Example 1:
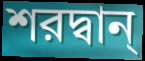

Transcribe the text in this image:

শরদ্বান্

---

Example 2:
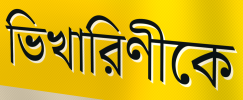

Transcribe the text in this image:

ভিখারিণীকে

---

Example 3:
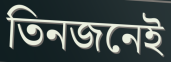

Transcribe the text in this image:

তিনজনেই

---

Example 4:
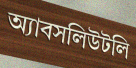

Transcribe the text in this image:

অ্যাবসলিউটলি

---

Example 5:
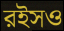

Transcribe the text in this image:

রইসও